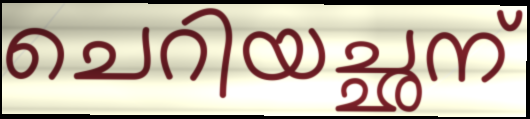
ചെറിയച്ഛന്